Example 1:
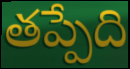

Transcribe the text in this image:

తప్పేది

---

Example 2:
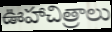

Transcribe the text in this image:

ఊహాచిత్రాలు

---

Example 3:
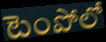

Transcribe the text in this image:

టెంపోలో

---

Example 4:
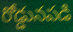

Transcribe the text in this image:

రోడ్డునపడి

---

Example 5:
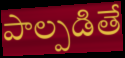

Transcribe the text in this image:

పాల్పడితే